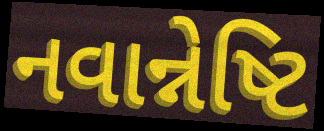
નવાન્નેષ્ટિ